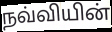
நவ்வியின்